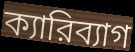
ক্যারিব্যাগ